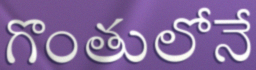
గొంతులోనే